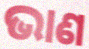
ଭାଣ